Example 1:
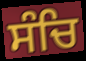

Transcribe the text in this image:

ਸੰਚਿ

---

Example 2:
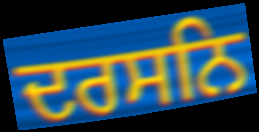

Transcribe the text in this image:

ਦਰਸਨਿ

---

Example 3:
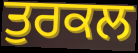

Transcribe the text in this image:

ਤੁਰਕਲ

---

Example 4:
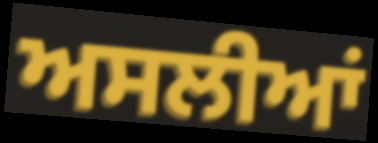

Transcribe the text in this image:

ਅਸਲੀਆਂ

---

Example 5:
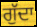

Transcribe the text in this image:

ਗੁੱਦਾ